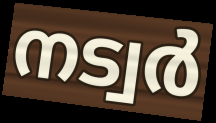
നട്വർ